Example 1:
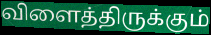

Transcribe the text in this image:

விளைத்திருக்கும்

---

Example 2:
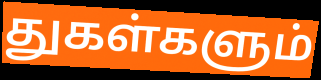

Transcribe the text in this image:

துகள்களும்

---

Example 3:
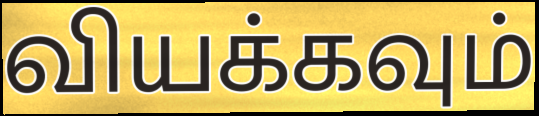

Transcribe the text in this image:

வியக்கவும்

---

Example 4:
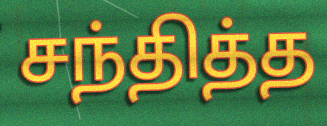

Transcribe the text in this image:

சந்தித்த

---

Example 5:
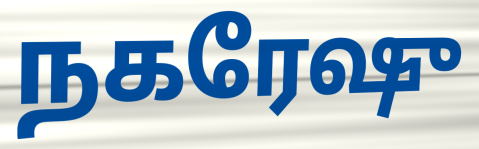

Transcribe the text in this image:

நகரேஷு